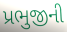
પ્રભુજીની